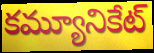
కమ్యూనికేట్